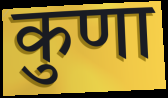
कुणा